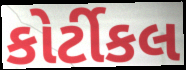
કોર્ટીકલ